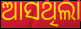
ଆସଥିଲା